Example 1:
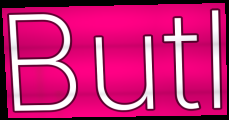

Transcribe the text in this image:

Butl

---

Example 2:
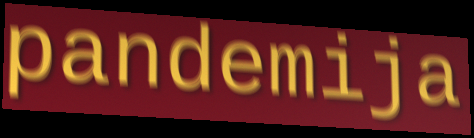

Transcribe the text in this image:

pandemija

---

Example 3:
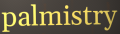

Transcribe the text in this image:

palmistry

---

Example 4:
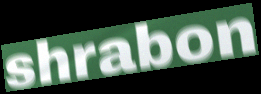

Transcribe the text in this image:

shrabon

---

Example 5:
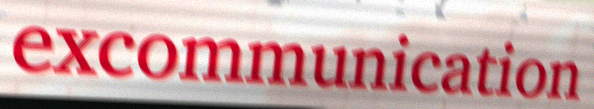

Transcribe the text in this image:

excommunication